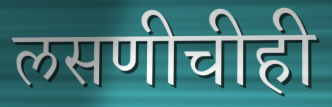
लसणीचीही